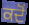
ਕਦੋਂ